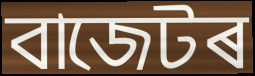
বাজেটৰ